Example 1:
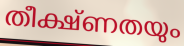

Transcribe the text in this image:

തീക്ഷ്‌ണതയും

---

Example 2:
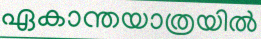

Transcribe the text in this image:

ഏകാന്തയാത്രയിൽ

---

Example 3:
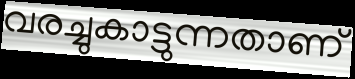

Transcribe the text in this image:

വരച്ചുകാട്ടുന്നതാണ്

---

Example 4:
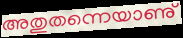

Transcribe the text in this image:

അതുതന്നെയാണു്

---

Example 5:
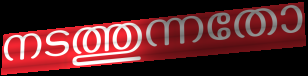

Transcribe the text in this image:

നടത്തുന്നതോ